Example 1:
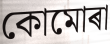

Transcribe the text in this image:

কোমোৰা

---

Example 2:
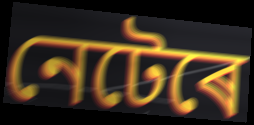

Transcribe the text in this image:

নেটেৰে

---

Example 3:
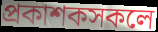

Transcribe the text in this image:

প্ৰকাশকসকলে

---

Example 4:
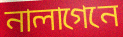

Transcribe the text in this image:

নালাগেনে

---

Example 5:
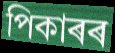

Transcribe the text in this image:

পিকাৰৰ